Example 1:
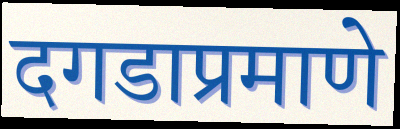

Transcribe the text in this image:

दगडाप्रमाणे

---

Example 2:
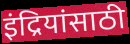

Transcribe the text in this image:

इंद्रियांसाठी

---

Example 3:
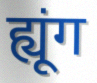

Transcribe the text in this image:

ह्यूंग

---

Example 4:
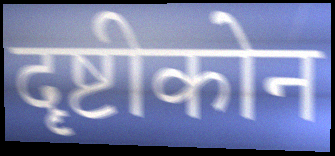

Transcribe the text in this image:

दृष्टीकोन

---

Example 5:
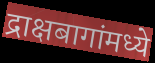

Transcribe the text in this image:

द्राक्षबागांमध्ये